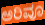
ಅರಿವೂ